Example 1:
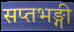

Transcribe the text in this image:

सप्तभङ्गी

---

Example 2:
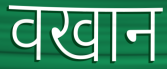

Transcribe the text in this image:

वखान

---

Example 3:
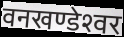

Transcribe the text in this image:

वनखण्डेश्वर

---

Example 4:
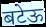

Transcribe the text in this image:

बटेऊ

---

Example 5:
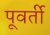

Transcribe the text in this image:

पूवर्ती